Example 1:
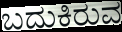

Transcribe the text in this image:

ಬದುಕಿರುವ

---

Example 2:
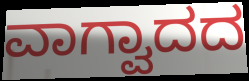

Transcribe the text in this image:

ವಾಗ್ವಾದದ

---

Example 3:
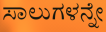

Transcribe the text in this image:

ಸಾಲುಗಳನ್ನೇ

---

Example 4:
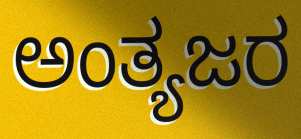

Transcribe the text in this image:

ಅಂತ್ಯಜರ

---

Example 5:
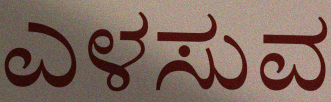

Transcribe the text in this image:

ಎಳಸುವ